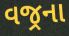
વજ્રના